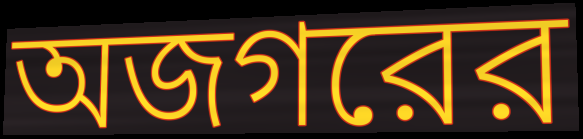
অজগরের